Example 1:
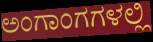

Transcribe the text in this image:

ಅಂಗಾಂಗಗಳಲ್ಲಿ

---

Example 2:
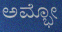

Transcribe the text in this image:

ಅಮ್ಭೋ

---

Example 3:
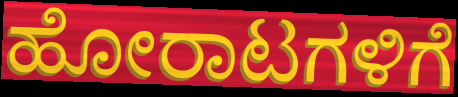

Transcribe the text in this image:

ಹೋರಾಟಗಳಿಗೆ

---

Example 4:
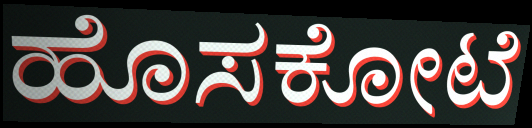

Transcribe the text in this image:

ಹೊಸಕೋಟೆ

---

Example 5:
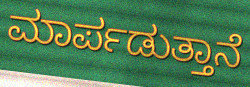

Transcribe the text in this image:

ಮಾರ್ಪಡುತ್ತಾನೆ